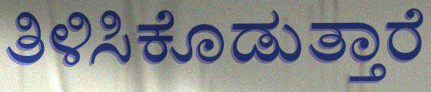
ತಿಳಿಸಿಕೊಡುತ್ತಾರೆ